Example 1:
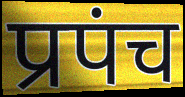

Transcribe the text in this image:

प्रपंच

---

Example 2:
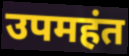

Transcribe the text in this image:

उपमहंत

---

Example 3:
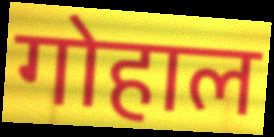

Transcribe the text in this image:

गोहाल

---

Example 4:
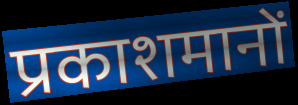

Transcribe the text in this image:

प्रकाशमानों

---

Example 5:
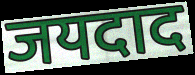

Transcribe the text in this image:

जयदाद